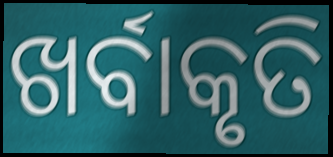
ଖର୍ବାକୃତି